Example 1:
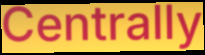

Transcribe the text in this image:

Centrally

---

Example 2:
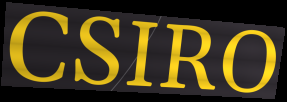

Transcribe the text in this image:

CSIRO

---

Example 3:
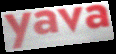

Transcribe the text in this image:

yava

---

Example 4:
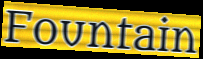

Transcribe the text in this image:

Fountain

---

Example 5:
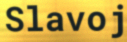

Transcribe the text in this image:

Slavoj